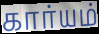
கார்யம்